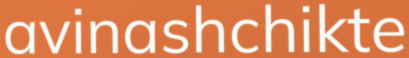
avinashchikte